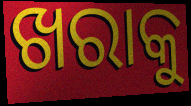
ଖରାକୁ